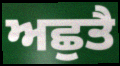
ਅਛੁਤੈ